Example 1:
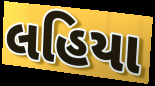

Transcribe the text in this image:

લહિયા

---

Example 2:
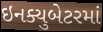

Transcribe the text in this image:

ઇનક્યુબેટરમાં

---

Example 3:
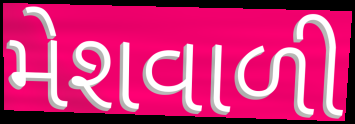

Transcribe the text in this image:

મેશવાળી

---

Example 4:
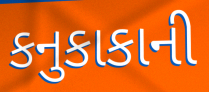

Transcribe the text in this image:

કનુકાકાની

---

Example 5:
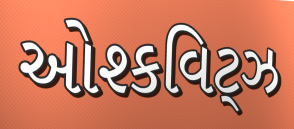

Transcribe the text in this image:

ઓશ્કવિટ્ઝ